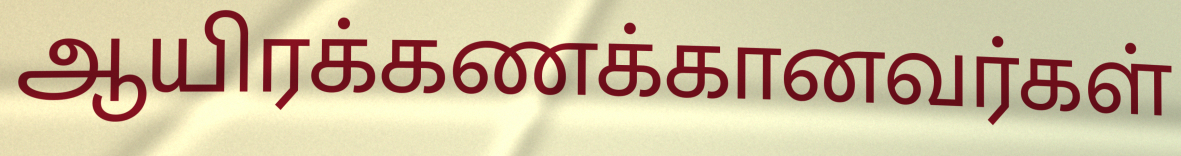
ஆயிரக்கணக்கானவர்கள்